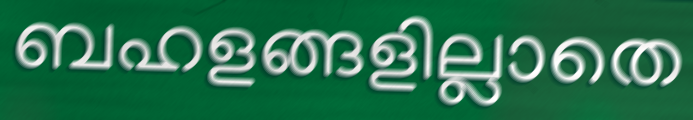
ബഹളങ്ങളില്ലാതെ